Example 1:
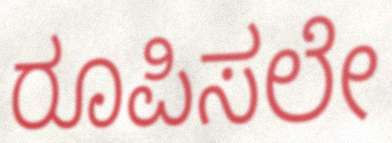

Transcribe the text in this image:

ರೂಪಿಸಲೇ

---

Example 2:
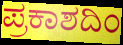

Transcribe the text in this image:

ಪ್ರಕಾಶದಿಂ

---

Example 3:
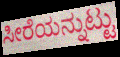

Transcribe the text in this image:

ಸೀರೆಯನ್ನುಟ್ಟು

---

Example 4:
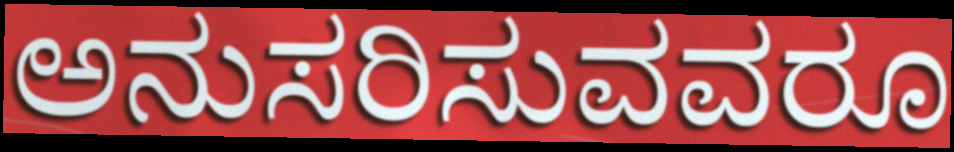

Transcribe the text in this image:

ಅನುಸರಿಸುವವರೂ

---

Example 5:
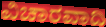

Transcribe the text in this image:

ವಿಚಾರವಾದಿ